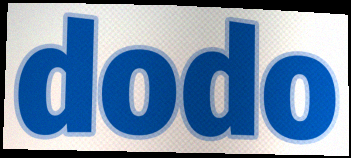
dodo